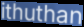
ithuthan